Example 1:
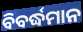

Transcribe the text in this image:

ବିବର୍ଦ୍ଧମାନ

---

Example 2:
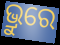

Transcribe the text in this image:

ଭ୍ରୁରେ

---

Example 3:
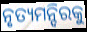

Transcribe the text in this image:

ନୃତ୍ୟମନ୍ଦିରକୁ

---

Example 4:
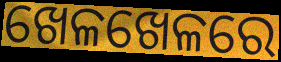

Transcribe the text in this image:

ଖେଳଖେଳରେ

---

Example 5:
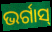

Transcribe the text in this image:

ଭର୍ଗାସ୍